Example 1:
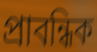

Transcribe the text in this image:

প্রাবন্ধিক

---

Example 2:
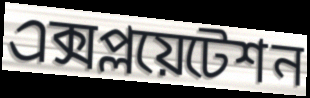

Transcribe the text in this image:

এক্সপ্লয়েটেশন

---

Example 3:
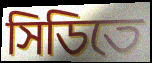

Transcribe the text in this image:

সিডিতে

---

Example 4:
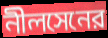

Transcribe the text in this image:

নীলসেনের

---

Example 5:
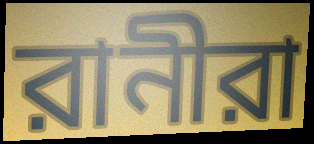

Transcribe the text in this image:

রানীরা